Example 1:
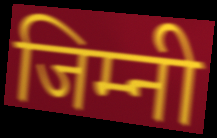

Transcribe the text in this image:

जिम्नी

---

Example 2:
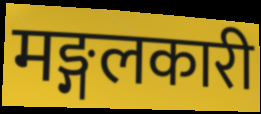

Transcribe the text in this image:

मङ्गलकारी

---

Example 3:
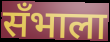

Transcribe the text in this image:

सँभाला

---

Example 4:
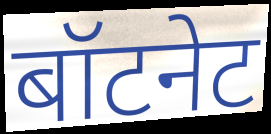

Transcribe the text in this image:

बॉटनेट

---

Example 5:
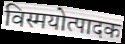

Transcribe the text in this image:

विस्मयोत्पादक